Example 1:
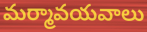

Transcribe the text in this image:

మర్మావయవాలు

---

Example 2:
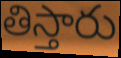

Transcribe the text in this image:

తిస్తారు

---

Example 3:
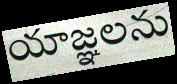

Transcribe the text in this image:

యాజ్ఞలను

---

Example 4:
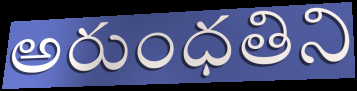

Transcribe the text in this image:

అరుంధతిని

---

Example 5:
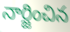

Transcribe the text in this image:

నార్జించిన